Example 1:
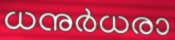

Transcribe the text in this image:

ധനുർധരാ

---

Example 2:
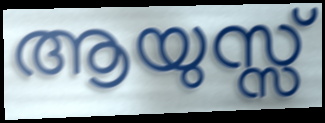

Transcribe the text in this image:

ആയുസ്സ്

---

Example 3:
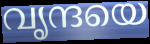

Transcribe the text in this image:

വൃന്ദയെ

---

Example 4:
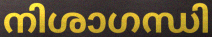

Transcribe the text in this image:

നിശാഗന്ധി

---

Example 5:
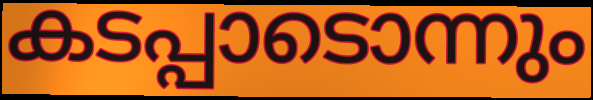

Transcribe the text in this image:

കടപ്പാടൊന്നും